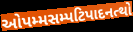
ઓપમ્મસમ્પટિપાદનત્થો